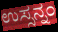
ಉಸ್ಸನ್ನಂ